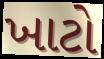
ખાટો